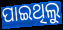
ପାଇଥିଲୁ